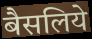
बैसलिये